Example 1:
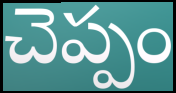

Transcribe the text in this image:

చెప్పం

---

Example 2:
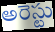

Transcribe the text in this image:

అరెస్టు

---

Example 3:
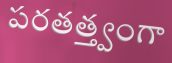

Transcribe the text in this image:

పరతత్త్వంగా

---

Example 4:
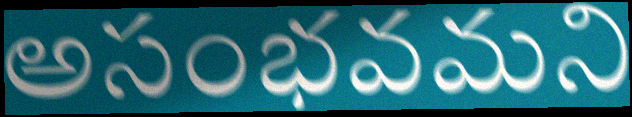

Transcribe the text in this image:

అసంభవమని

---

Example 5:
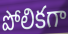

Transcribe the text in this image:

పోలికగా